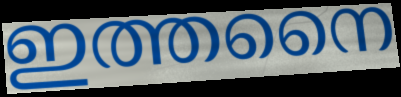
ഇത്തനൈ